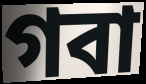
গবা